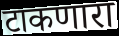
टाकणारा